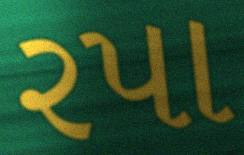
રપા